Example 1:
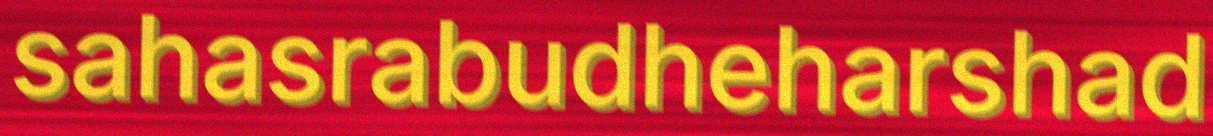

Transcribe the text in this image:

sahasrabudheharshad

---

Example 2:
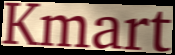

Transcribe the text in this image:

Kmart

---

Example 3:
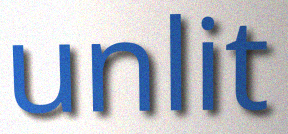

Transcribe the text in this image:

unlit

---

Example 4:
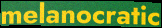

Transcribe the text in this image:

melanocratic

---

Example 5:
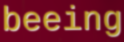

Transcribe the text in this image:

beeing